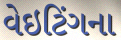
વેઇટિંગના